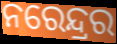
ନରେନ୍ଦ୍ରର